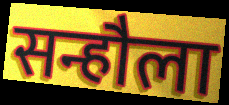
सन्हौला